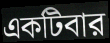
একটিবার